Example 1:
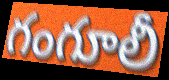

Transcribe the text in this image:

గంగూలీ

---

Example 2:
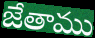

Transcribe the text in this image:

జేతాము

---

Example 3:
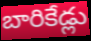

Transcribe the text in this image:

బారికేడ్లు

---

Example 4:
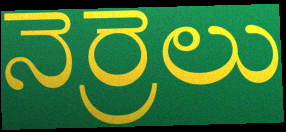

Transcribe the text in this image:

నెర్రెలు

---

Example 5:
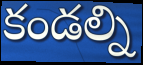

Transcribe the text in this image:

కండల్ని